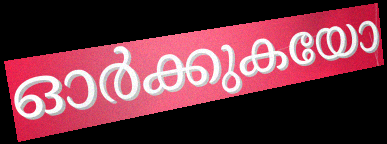
ഓർക്കുകയോ